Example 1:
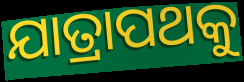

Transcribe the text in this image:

ଯାତ୍ରାପଥକୁ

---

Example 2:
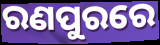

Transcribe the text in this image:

ରଣପୁରରେ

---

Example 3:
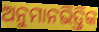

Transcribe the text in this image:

ଅନୁମାନଭିତ୍ତିକ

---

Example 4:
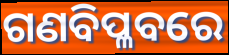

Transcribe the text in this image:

ଗଣବିପ୍ଳବରେ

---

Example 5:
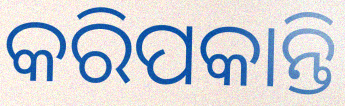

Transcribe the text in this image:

କରିପକାନ୍ତି